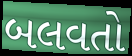
બલવતો